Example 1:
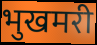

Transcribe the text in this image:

भुखमरी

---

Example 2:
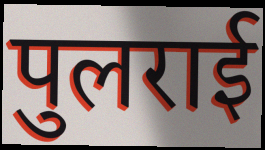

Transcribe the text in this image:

पुलराई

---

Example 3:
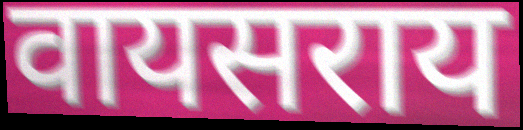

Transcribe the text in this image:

वायसराय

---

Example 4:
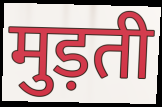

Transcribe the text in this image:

मुड़ती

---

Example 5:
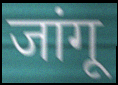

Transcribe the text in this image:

जांगू